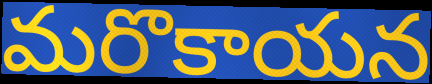
మరొకాయన